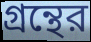
গ্রন্থের